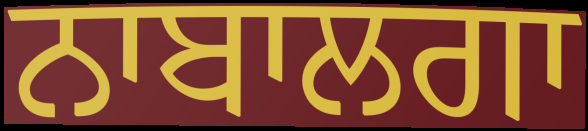
ਨਾਬਾਲਗਾ